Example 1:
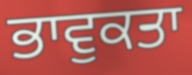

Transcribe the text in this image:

ਭਾਵੁਕਤਾ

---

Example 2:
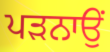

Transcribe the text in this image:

ਪਡ਼ਨਾਉਂ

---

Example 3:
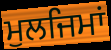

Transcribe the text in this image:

ਮੁਲਜਿਮਾਂ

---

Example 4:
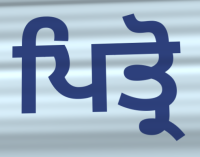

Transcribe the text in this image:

ਪਿਤ੍ਰੋ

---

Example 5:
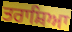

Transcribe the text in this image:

ਤਰਾਸ਼ਿਆ